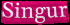
Singur